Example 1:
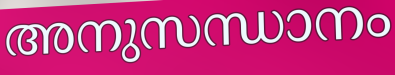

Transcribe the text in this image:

അനുസന്ധാനം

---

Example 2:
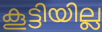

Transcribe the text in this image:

കൂട്ടിയില്ല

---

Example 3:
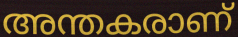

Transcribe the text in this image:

അന്തകരാണ്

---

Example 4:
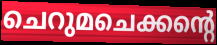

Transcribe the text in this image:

ചെറുമചെക്കന്റെ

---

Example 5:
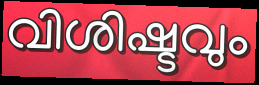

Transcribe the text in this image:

വിശിഷ്ടവും